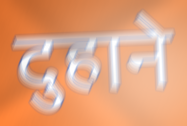
दुहाने